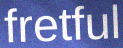
fretful